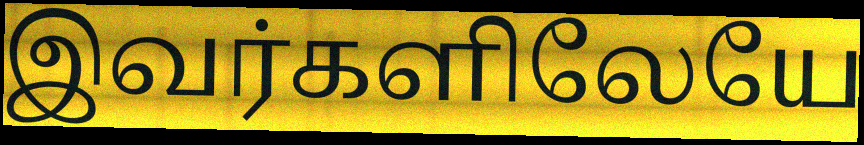
இவர்களிலேயே